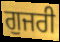
ਗੁਜਰੀ